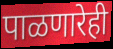
पाळणारेही